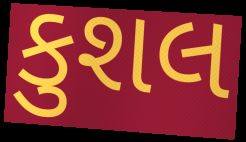
કુશલ